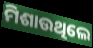
ମିଶାଉଥିଲେ